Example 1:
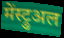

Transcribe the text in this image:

मेंस्ट्रुअल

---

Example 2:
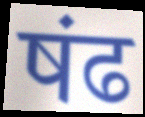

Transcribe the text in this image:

षंढ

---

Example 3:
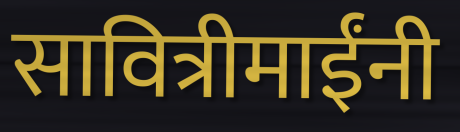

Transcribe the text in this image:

सावित्रीमाईंनी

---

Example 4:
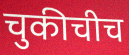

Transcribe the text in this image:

चुकीचीच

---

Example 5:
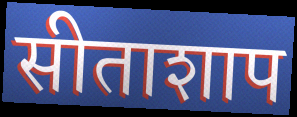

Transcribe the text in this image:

सीताशाप